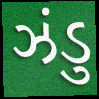
ઝંડુ